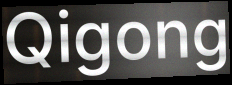
Qigong